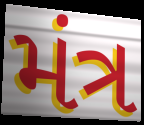
મંત્ર